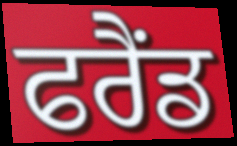
ਫਰੈਂਡ